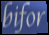
bifor